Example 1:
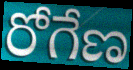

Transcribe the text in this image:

రోగేణ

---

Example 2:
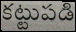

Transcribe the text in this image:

కట్టుపడి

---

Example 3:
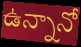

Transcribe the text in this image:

ఉన్నానో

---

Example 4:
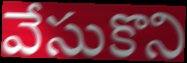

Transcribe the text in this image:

వేసుకొని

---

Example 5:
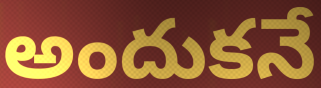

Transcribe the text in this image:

అందుకనే